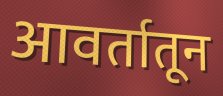
आवर्तातून